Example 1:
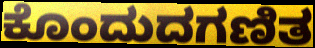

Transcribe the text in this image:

ಕೊಂದುದಗಣಿತ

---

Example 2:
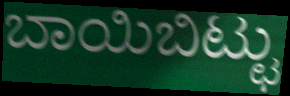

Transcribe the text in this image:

ಬಾಯಿಬಿಟ್ಟು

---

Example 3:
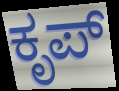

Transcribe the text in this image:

ಕೃಪ್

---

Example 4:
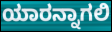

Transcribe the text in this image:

ಯಾರನ್ನಾಗಲಿ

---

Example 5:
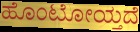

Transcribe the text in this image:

ಹೊಂಟೋಯ್ತದೆ